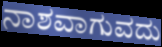
ನಾಶವಾಗುವದು